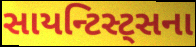
સાયન્ટિસ્ટ્સના